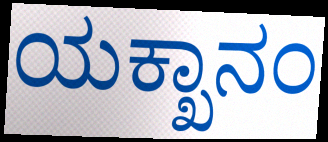
ಯಕ್ಖಾನಂ